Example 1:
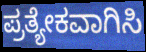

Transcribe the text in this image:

ಪ್ರತ್ಯೇಕವಾಗಿಸಿ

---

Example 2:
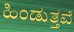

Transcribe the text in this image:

ಹಿಂಡುತ್ತವೆ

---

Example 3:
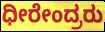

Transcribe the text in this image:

ಧೀರೇಂದ್ರರು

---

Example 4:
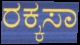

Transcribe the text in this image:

ರಕ್ಕಸಾ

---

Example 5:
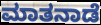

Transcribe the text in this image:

ಮಾತನಾಡೆ